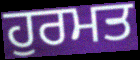
ਹੁਰਮਤ